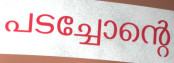
പടച്ചോന്റെ